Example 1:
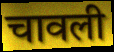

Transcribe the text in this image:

चावली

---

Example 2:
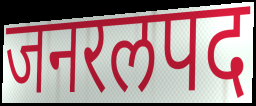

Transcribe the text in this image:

जनरलपद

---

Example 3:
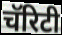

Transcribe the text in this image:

चॅरिटी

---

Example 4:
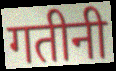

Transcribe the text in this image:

गतीनी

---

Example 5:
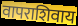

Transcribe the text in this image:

वापराशिवाय